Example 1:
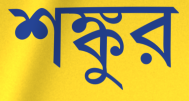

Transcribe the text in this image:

শঙ্কুর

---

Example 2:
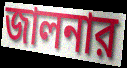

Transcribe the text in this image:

জালনার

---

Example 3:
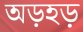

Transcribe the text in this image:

অড়হড়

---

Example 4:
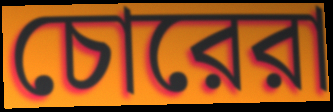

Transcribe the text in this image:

চোরেরা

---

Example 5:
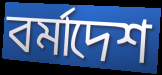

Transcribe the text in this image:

বর্মাদেশ